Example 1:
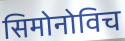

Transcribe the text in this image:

सिमोनोविच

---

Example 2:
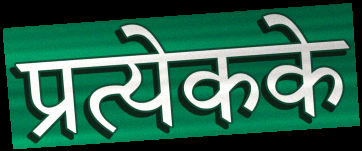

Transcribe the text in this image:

प्रत्येकके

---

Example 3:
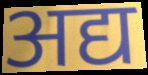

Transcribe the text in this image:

अद्य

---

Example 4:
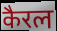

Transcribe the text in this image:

कैरल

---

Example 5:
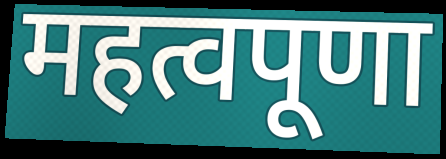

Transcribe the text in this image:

महत्वपूणा